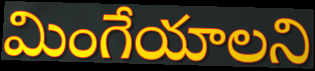
మింగేయాలని